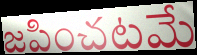
జపించటమే